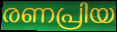
രണപ്രിയ